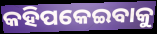
କହିପକେଇବାକୁ